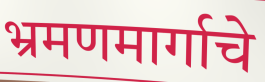
भ्रमणमार्गाचे